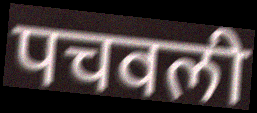
पचवली